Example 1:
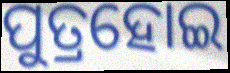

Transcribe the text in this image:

ପୁତ୍ରହୋଇ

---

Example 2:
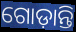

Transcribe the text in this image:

ଗୋଡ଼ାନ୍ତି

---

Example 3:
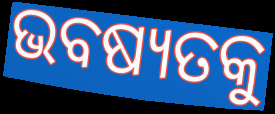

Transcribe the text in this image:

ଭବଷ୍ୟତକୁ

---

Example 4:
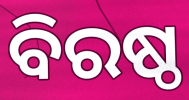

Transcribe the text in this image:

ବିରଷ୍ଠ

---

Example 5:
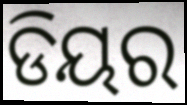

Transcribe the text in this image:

ଡିୟର